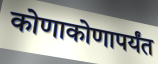
कोणाकोणापर्यंत